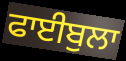
ਫਾਈਬੁਲਾ